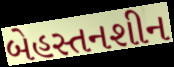
બેહસ્તનશીન